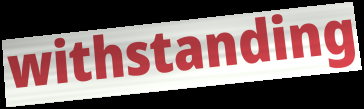
withstanding